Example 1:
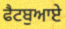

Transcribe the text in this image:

ਫੈਟਬੁਆਏ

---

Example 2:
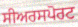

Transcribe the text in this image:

ਸੀਅਰਸਪੋਰਟ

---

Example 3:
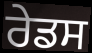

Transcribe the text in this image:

ਰੇਡਸ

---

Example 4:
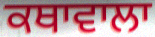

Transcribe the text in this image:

ਕਥਾਵਾਲਾ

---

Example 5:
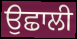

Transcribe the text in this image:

ਉਛਾਲੀ